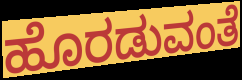
ಹೊರಡುವಂತೆ